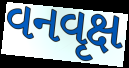
વનવૃક્ષ